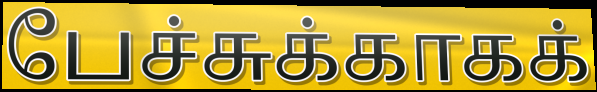
பேச்சுக்காகக்